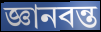
জ্ঞানবন্ত